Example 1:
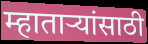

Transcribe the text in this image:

म्हाताऱ्यांसाठी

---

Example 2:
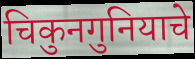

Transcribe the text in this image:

चिकुनगुनियाचे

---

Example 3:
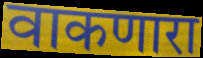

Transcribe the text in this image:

वाकणारा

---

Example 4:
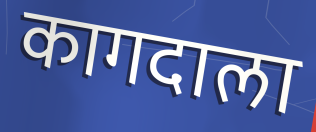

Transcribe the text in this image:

कागदाला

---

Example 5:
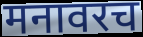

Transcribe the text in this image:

मनावरच